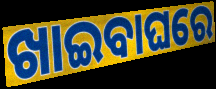
ଖାଇବାଘରେ